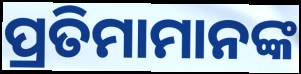
ପ୍ରତିମାମାନଙ୍କ